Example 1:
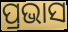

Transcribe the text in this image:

ପ୍ରଭାସ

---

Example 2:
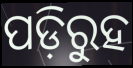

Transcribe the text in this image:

ପଡ଼ିରୁହ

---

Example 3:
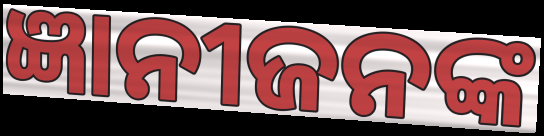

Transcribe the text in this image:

ଜ୍ଞାନୀଜନଙ୍କ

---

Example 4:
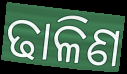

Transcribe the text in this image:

ଢାଳିଣ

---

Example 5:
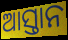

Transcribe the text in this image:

ଆସ୍ତାନ